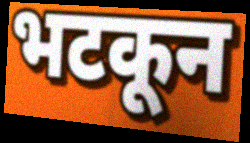
भटकून